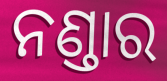
ନଣ୍ଡାର